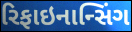
રિફાઇનાન્સિંગ